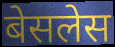
बेसलेस